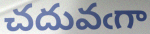
చదువఁగా